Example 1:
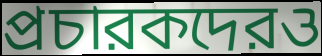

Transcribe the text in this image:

প্রচারকদেরও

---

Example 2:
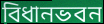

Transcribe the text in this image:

বিধানভবন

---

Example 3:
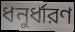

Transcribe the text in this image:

ধনুর্ধারণ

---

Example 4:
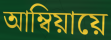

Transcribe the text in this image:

আম্বিয়ায়ে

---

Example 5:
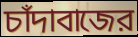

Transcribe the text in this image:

চাঁদাবাজের